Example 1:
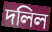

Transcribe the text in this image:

দলিল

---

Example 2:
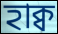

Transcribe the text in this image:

হাক্ব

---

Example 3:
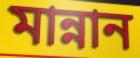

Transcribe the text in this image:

মান্নান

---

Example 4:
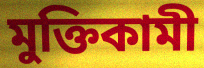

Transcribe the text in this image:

মুক্তিকামী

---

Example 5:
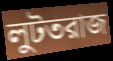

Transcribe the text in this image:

লুটতরাজ